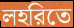
লহরিতে